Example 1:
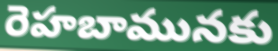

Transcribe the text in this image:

రెహబామునకు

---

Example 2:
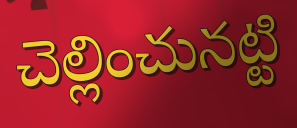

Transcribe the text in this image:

చెల్లించునట్టి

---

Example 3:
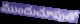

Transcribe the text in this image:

ముందుచూపుతో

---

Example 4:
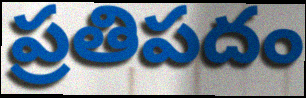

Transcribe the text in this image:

ప్రతిపదం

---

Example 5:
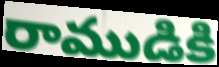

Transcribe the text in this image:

రాముడికి